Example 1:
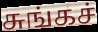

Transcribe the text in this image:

சுங்கச்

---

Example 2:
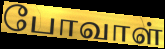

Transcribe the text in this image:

போவாள்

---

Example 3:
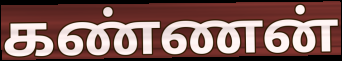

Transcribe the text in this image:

கண்ணன்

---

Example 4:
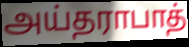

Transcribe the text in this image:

அய்தராபாத்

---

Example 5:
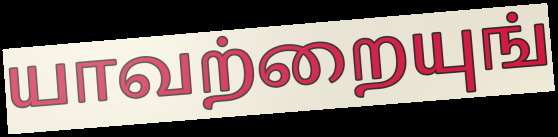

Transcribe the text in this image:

யாவற்றையுங்